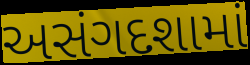
અસંગદશામાં